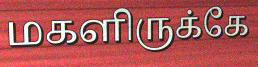
மகளிருக்கே